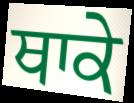
ਥਾਕੇ